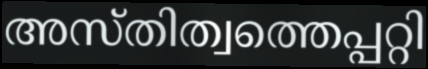
അസ്തിത്വത്തെപ്പറ്റി